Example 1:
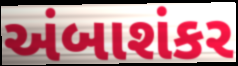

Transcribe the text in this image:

અંબાશંકર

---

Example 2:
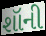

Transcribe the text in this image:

શૉની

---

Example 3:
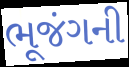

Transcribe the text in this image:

ભૂજંગની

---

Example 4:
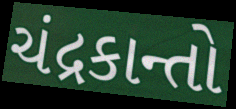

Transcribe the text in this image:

ચંદ્રકાન્તો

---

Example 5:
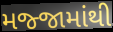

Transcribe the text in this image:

મજ્જામાંથી